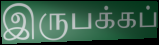
இருபக்கப்